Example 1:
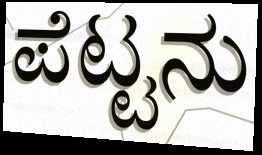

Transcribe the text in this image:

ಪೆಟ್ಟನು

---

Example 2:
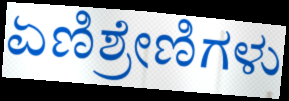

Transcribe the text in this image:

ಏಣಿಶ್ರೇಣಿಗಳು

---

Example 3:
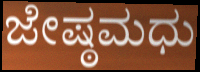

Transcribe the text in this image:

ಜೇಷ್ಠಮಧು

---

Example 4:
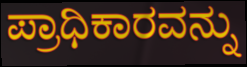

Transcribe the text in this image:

ಪ್ರಾಧಿಕಾರವನ್ನು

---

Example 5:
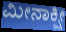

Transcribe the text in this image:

ಮೀನಾಕ್ಷೀ